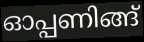
ഓപ്പണിങ്ങ്